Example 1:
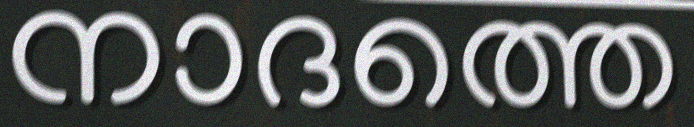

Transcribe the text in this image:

നാദത്തെ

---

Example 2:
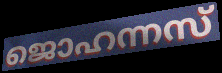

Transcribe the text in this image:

ജൊഹന്നസ്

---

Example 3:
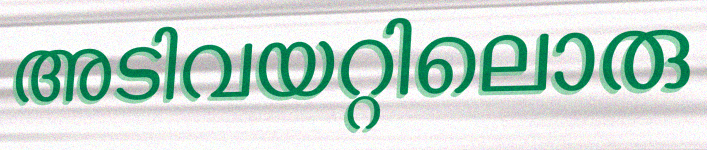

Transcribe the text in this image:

അടിവയറ്റിലൊരു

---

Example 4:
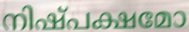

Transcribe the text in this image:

നിഷ്പക്ഷമോ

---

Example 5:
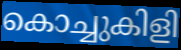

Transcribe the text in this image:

കൊച്ചുകിളി